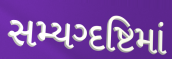
સમ્યગ્દષ્ટિમાં